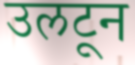
उलटून